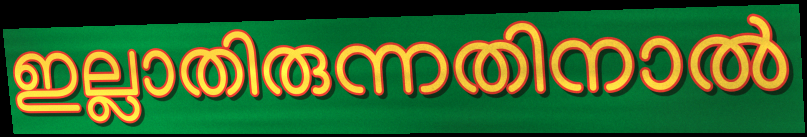
ഇല്ലാതിരുന്നതിനാൽ